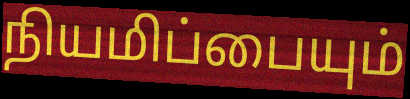
நியமிப்பையும்